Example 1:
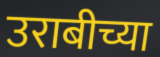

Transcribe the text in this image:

उराबीच्या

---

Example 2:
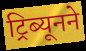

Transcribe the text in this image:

ट्रिब्यूनने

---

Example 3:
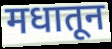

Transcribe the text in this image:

मधातून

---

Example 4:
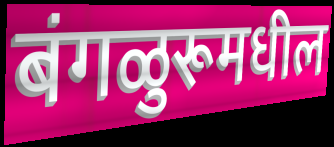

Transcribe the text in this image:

बंगळुरूमधील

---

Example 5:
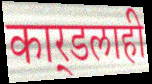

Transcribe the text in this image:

कार्डलाही